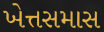
ખેત્તસમાસ